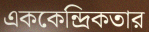
এককেন্দ্রিকতার